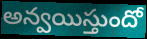
అన్వయిస్తుందో